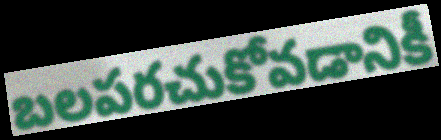
బలపరచుకోవడానికీ